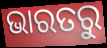
ଭାରତରୁ